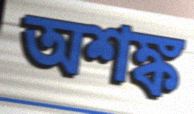
অশঙ্ক